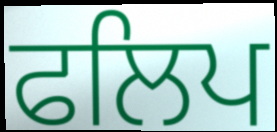
ਫਲਿਪ